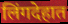
लिंगदेहात